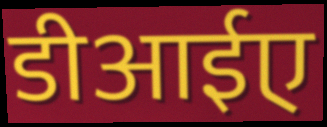
डीआईए